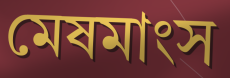
মেষমাংস